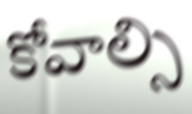
కోవాల్సి